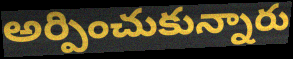
అర్పించుకున్నారు